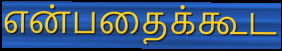
என்பதைக்கூட